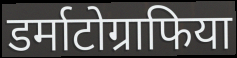
डर्माटोग्राफिया